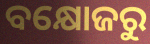
ବକ୍ଷୋଜରୁ